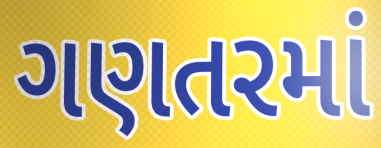
ગણતરમાં